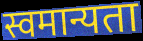
स्वमान्यता